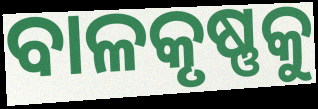
ବାଳକୃଷ୍ଣକୁ